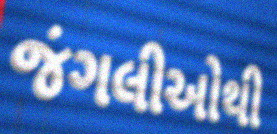
જંગલીઓથી